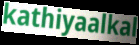
kathiyaalkal